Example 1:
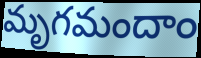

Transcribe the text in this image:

మృగమందాం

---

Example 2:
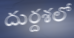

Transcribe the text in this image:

దుర్దశలో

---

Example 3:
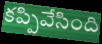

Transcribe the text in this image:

కప్పివేసింది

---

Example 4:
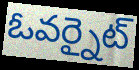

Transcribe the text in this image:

ఓవర్నైట్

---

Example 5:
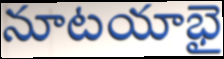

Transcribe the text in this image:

నూటయాభై